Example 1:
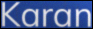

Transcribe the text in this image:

Karan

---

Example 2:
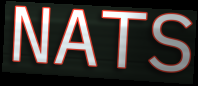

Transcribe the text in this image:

NATS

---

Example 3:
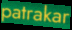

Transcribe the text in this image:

patrakar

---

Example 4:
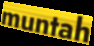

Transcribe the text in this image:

muntah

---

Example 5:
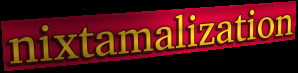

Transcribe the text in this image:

nixtamalization